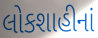
લોકશાહીનાં